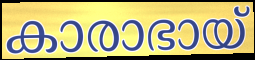
കാരാഭായ്